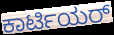
ಕಾರ್ಟಿಯರ್